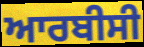
ਆਰਬੀਸੀ